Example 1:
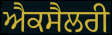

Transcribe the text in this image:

ਐਕਸੈਲਰੀ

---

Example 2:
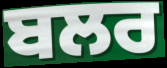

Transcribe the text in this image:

ਬਲਰ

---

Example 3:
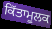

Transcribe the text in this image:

ਕਿੱਤਾਮੂਲਕ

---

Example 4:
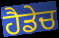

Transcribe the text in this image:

ਹੈਡੇਚ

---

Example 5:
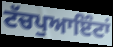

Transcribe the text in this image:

ਟੱਚਪੁਆਇੰਟਾਂ